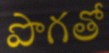
పొగతో